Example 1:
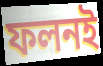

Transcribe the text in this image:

ফলনই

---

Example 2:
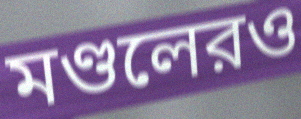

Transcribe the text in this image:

মণ্ডলেরও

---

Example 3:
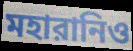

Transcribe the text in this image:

মহারানিও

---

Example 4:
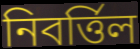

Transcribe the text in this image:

নিবর্ত্তিল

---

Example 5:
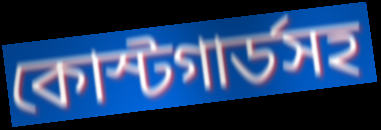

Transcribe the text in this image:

কোস্টগার্ডসহ